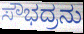
ಸೌಭದ್ರನು